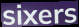
sixers